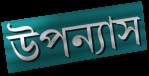
উপন্যাস